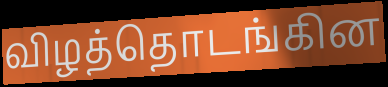
விழத்தொடங்கின